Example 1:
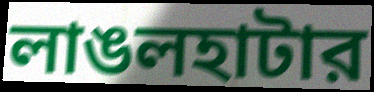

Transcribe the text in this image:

লাঙলহাটার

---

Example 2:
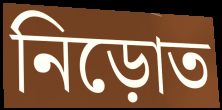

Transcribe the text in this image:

নিড়োত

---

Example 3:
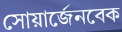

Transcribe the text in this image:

সোয়ার্জেনবেক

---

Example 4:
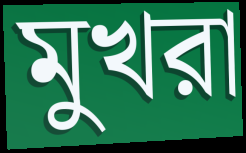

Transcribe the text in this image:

মুখরা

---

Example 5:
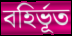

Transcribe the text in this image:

বহির্ভূত